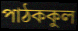
পাঠককুল